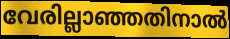
വേരില്ലാഞ്ഞതിനാൽ